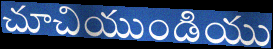
చూచియుండియు